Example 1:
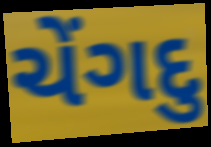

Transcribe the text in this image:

ચેંગદુ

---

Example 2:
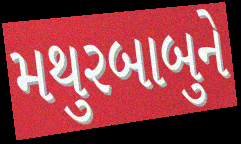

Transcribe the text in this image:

મથુરબાબુને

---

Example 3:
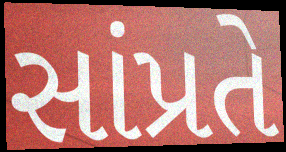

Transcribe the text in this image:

સાંપ્રતે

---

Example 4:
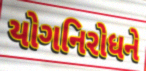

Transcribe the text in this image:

યોગનિરોધને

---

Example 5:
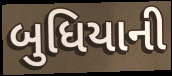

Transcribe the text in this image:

બુધિયાની